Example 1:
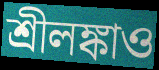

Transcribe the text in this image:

শ্রীলঙ্কাও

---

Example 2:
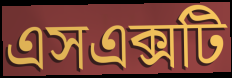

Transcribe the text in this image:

এসএক্সটি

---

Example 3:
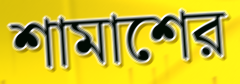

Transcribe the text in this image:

শামাশের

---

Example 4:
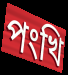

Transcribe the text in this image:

পংখি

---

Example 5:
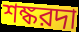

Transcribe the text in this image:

শঙ্করদা